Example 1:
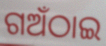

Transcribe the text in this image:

ଗଅଁଠାଇ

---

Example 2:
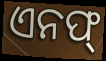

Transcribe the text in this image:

ଏନଫ୍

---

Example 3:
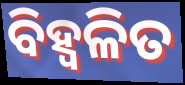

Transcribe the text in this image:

ବିହ୍ୱଳିତ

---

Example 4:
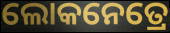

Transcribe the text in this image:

ଲୋକନେତ୍ରେ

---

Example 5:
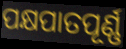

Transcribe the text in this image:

ପକ୍ଷପାତପୂର୍ଣ୍ଣ